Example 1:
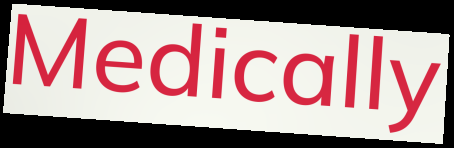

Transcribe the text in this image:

Medically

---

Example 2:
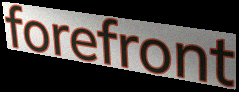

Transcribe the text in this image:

forefront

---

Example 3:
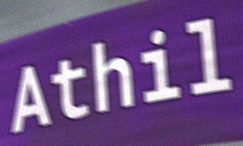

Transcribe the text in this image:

Athil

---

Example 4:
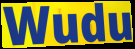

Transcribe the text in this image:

Wudu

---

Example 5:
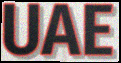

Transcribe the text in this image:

UAE